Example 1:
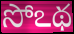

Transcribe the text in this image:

సోఽథ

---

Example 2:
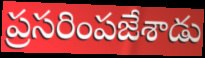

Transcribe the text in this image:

ప్రసరింపజేశాడు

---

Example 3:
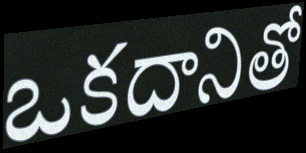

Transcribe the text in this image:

ఒకదానితో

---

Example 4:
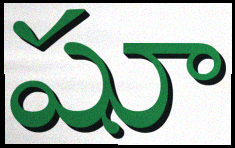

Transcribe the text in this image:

షూ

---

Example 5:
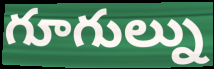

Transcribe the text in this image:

గూగుల్ను